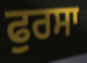
ਫੁਰਸਾ